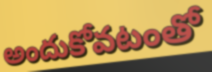
అందుకోవటంతో